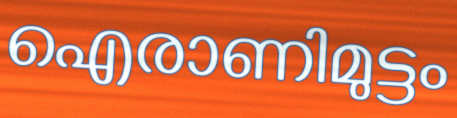
ഐരാണിമുട്ടം